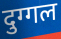
दुग्गल